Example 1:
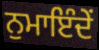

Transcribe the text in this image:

ਨੁਮਾਇੰਦੇਂ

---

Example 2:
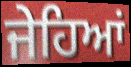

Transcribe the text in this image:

ਜੇਹਿਆਂ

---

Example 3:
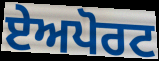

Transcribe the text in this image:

ਏਅਪੋਰਟ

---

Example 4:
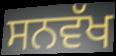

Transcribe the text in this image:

ਸਨਵੱਖ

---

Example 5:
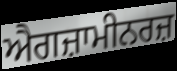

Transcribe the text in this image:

ਐਗਜ਼ਾਮੀਨਰਜ਼